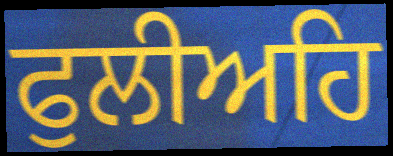
ਫੁਲੀਅਹਿ